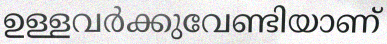
ഉള്ളവർക്കുവേണ്ടിയാണ്